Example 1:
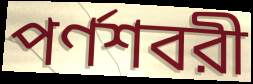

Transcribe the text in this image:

পর্ণশবরী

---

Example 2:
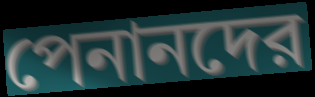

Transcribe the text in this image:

পেনানদের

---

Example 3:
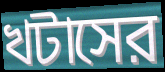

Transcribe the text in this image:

খটাসের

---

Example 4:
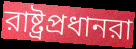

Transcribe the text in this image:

রাষ্ট্রপ্রধানরা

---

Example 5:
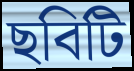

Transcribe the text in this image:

ছবিটি